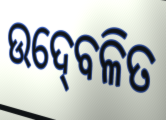
ଉଦ୍‍ବେଳିତ